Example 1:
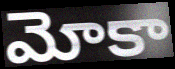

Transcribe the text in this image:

మోకా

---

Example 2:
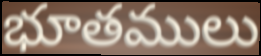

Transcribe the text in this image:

భూతములు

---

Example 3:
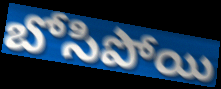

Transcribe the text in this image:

బోసిపోయి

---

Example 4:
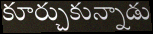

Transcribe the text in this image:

కూర్చుకున్నాడు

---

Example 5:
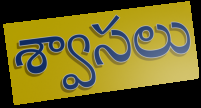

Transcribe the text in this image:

శ్వాసలు